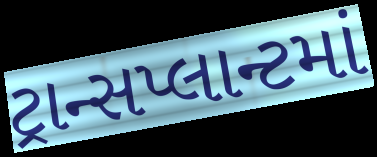
ટ્રાન્સપ્લાન્ટમાં